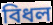
বিধল